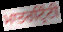
ਮਾਤਰਟ੍ਰਿੰਟੀ